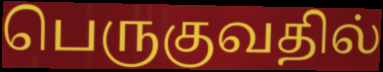
பெருகுவதில்